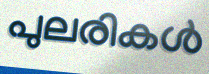
പുലരികൾ